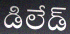
డిలేడ్